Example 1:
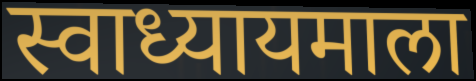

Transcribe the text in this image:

स्वाध्यायमाला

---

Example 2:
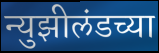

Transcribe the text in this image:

न्युझीलंडच्या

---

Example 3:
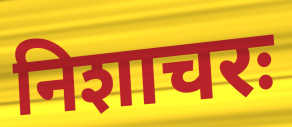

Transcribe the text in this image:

निशाचरः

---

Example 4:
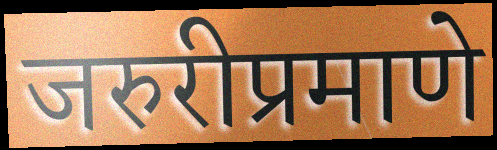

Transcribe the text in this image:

जरुरीप्रमाणे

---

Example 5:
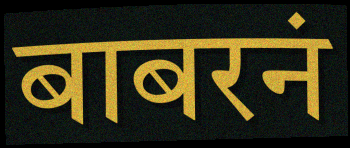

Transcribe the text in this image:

बाबरनं